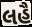
લહૈ